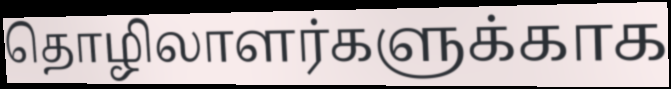
தொழிலாளர்களுக்காக